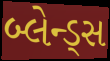
બ્લેન્ડ્સ